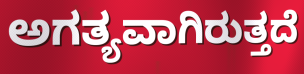
ಅಗತ್ಯವಾಗಿರುತ್ತದೆ